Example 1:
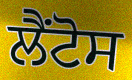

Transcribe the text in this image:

ਲੈਂਟੋਸ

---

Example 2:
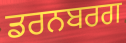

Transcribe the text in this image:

ਡਰਨਬਰਗ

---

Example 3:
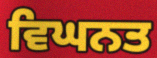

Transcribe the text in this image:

ਵਿਘਨਤ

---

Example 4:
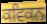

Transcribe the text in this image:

ਕਵਿਕਨ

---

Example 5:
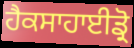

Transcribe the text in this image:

ਹੈਕਸਾਹਾਈਡ੍ਰੋ